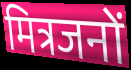
मित्रजनों